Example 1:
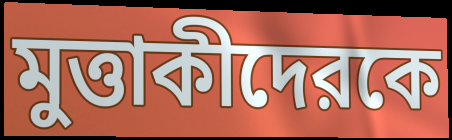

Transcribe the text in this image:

মুত্তাকীদেরকে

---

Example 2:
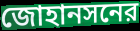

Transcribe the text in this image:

জোহানসনের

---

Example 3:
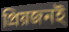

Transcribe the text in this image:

প্রিয়জনই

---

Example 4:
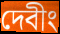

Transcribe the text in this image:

দেবীং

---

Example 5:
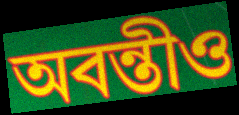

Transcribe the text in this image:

অবন্তীও